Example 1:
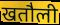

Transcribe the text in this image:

खतौली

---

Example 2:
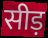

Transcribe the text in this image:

सीड़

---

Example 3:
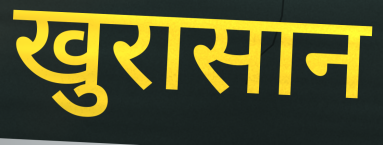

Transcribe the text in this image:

खुरासान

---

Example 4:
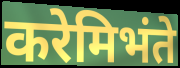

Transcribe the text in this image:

करेमिभंते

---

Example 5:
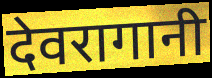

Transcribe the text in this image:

देवरागानी